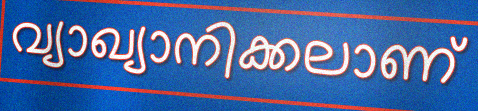
വ്യാഖ്യാനിക്കലാണ്